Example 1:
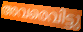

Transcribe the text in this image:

അവരെവിട്ടു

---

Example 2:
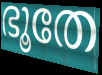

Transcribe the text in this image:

ഭൂതേ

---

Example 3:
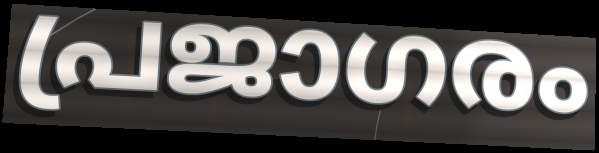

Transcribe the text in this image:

പ്രജാഗരം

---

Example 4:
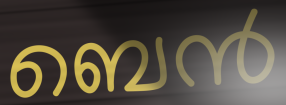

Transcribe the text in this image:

ബെൻ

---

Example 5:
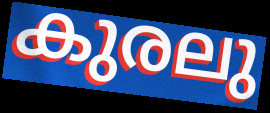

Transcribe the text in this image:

കുരലു